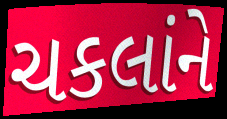
ચકલાંને